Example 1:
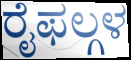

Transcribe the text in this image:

ರೈಫಲ್ಗಳ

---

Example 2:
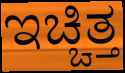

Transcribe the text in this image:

ಇಚ್ಚಿತ್ತ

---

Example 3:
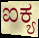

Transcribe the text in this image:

ಐಕ್ಯ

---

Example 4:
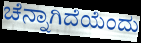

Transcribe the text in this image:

ಚೆನ್ನಾಗಿದೆಯೆಂದು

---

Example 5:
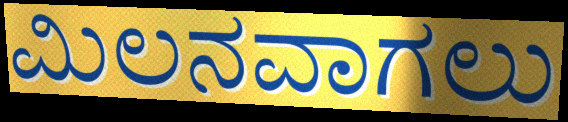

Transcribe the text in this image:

ಮಿಲನವಾಗಲು